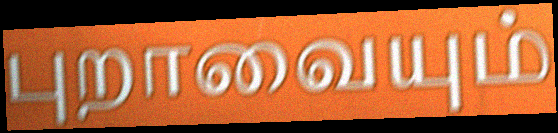
புறாவையும்